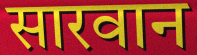
सारवान